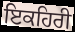
ਇਕਹਿਰੀ